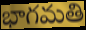
భాగమతి